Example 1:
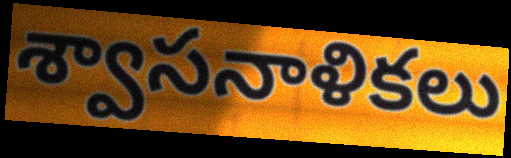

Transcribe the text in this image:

శ్వాసనాళికలు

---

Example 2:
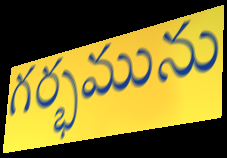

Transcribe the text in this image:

గర్భమును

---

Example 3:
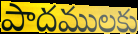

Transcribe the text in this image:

పాదములకు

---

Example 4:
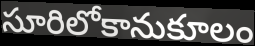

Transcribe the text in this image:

సూరిలోకానుకూలం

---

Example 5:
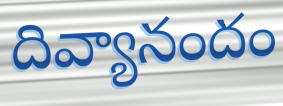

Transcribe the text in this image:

దివ్యానందం